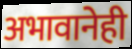
अभावानेही